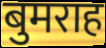
बुमराह